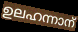
ഉലഹന്നാന്